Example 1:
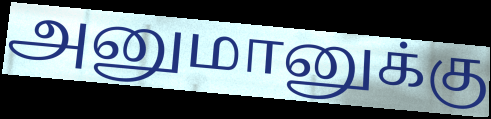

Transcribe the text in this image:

அனுமானுக்கு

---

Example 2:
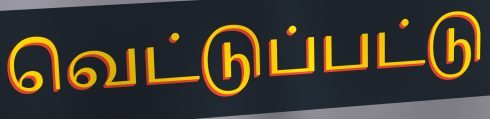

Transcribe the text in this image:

வெட்டுப்பட்டு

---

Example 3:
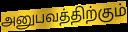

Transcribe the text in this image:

அனுபவத்திற்கும்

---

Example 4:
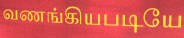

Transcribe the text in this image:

வணங்கியபடியே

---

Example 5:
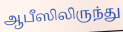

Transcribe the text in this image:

ஆபீஸிலிருந்து